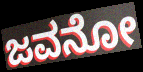
ಜವನೋ